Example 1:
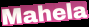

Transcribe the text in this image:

Mahela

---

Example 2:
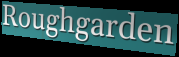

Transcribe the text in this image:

Roughgarden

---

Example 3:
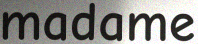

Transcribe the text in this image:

madame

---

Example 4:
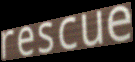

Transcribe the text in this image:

rescue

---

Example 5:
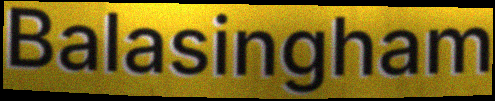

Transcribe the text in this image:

Balasingham